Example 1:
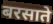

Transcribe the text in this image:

बरसाते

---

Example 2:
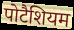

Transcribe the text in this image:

पोटैशियम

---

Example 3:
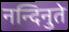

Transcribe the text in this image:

नन्दिनुते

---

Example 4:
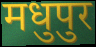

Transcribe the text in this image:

मधुपुर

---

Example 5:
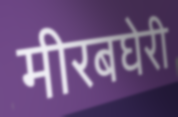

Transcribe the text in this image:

मीरबघेरी